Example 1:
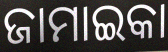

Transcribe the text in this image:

ଜାମାଇକା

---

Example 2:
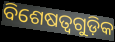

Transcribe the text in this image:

ବିଶେଷତ୍ୱଗୁଡ଼ିକ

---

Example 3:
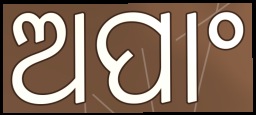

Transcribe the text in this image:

ଅପାଂ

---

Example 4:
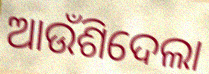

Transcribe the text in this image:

ଆଉଁଶିଦେଲା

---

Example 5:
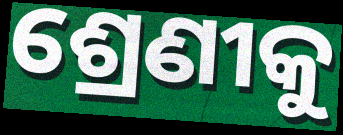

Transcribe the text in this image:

ଶ୍ରେଣୀକୁ